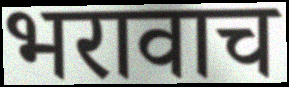
भरावाच